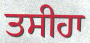
ਤਸੀਹਾ